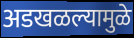
अडखळल्यामुळे